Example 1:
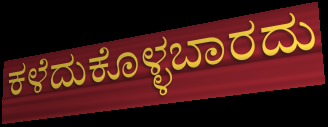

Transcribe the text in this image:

ಕಳೆದುಕೊಳ್ಳಬಾರದು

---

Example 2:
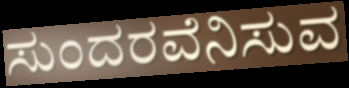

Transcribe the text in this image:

ಸುಂದರವೆನಿಸುವ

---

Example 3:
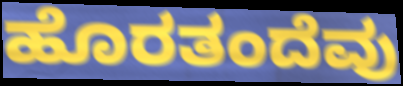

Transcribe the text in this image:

ಹೊರತಂದೆವು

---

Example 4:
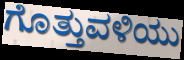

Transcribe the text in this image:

ಗೊತ್ತುವಳಿಯು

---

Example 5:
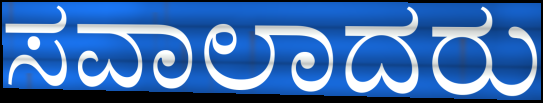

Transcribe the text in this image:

ಸವಾಲಾದರು